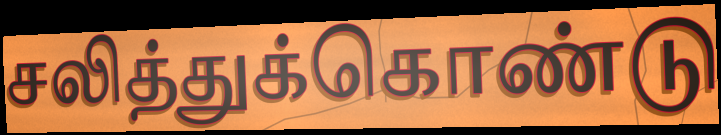
சலித்துக்கொண்டு